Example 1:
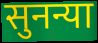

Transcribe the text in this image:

सुनन्या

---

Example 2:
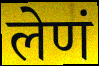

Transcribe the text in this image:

लेणं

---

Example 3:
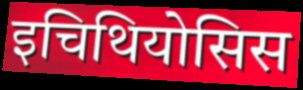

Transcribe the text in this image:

इचिथियोसिस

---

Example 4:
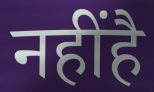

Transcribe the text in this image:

नहींहै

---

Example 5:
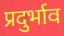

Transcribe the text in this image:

प्रदुर्भाव